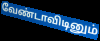
வேண்டாவிடினும்